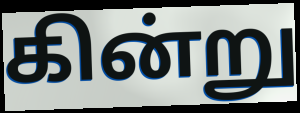
கின்று